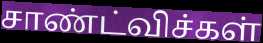
சாண்ட்விச்கள்